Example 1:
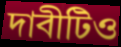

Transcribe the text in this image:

দাবীটিও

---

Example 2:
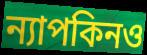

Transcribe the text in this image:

ন্যাপকিনও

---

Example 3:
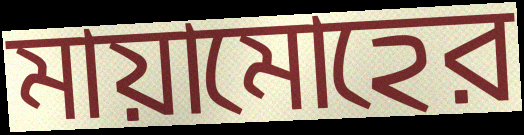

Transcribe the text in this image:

মায়ামোহের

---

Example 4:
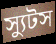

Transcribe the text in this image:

স্যুটস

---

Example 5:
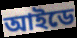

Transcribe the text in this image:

আইডে